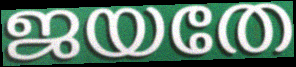
ജയതേ